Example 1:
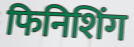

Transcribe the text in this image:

फिनिशिंग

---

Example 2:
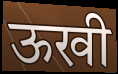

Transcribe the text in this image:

ऊखी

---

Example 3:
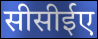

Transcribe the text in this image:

सीसीईए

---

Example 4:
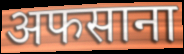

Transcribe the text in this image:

अफसाना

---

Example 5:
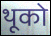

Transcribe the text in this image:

थूको